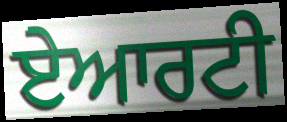
ਏਆਰਟੀ